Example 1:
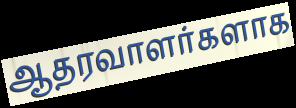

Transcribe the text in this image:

ஆதரவாளர்களாக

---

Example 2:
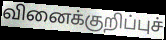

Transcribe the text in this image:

வினைக்குறிப்புச்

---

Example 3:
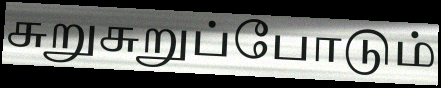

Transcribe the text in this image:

சுறுசுறுப்போடும்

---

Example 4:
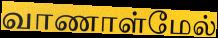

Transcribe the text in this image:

வாணாள்மேல்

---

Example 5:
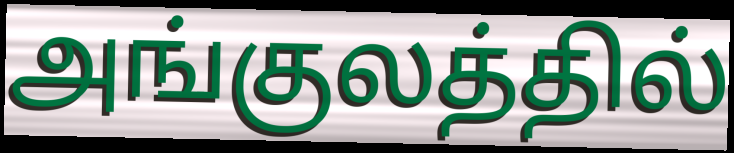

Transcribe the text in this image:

அங்குலத்தில்